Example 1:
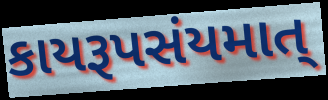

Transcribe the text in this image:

કાયરૂપસંયમાત્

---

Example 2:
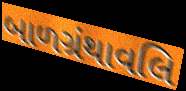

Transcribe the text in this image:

બાળગ્રંથાવલિ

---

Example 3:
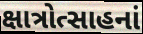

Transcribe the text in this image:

ક્ષાત્રોત્સાહનાં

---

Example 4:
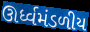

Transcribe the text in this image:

ઊર્ધ્વમંડળીય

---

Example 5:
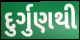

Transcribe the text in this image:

દુર્ગુણથી